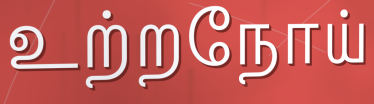
உற்றநோய்